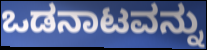
ಒಡನಾಟವನ್ನು